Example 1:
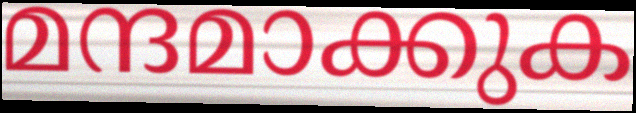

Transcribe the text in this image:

മന്ദമാക്കുക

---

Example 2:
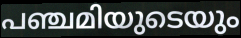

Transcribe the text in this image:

പഞ്ചമിയുടെയും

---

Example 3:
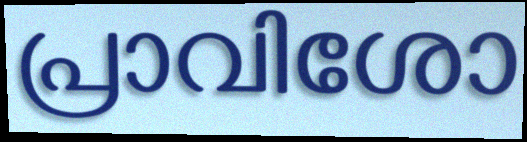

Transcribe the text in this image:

പ്രാവിശോ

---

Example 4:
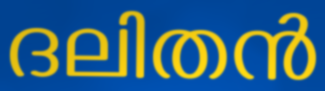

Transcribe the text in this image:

ദലിതൻ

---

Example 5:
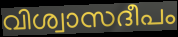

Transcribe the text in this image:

വിശ്വാസദീപം